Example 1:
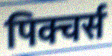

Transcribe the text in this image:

पिक्चर्स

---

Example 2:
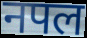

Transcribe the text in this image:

नपल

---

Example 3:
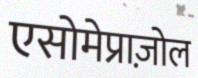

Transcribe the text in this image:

एसोमेप्राज़ोल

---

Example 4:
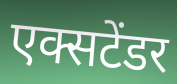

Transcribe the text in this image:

एक्सटेंडर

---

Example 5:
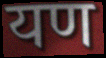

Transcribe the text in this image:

यण